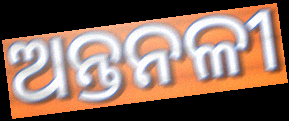
ଅନ୍ତନଳୀ